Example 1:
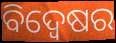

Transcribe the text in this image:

ବିଦ୍ୱେଷର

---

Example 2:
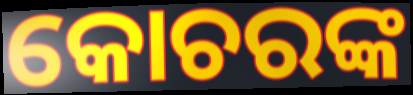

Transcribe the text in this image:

କୋଚରଙ୍କ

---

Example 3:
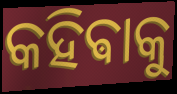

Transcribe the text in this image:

କହିଵାକୁ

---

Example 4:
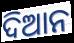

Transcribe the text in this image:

ଦିଆନ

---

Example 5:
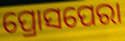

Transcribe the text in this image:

ପ୍ରୋସପେରା